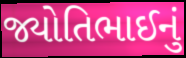
જ્યોતિભાઈનું